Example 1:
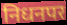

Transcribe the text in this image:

निधनपर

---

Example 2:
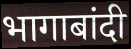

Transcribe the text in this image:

भागाबांदी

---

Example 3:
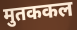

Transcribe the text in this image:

मुतककल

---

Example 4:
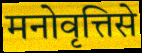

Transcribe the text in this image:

मनोवृत्तिसे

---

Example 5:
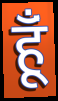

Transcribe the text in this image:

हूँं